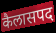
कैलासपद